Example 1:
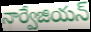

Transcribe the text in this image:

నార్వేజియన్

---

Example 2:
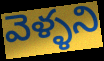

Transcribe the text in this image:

వెళ్ళని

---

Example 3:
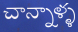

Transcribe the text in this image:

చాన్నాళ్ళ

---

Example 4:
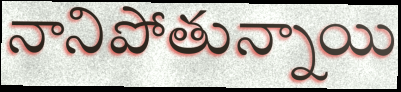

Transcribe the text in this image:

నానిపోతున్నాయి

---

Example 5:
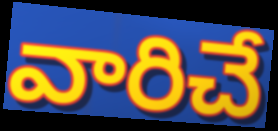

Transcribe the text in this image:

వారిచే